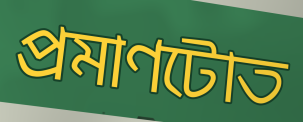
প্ৰমাণটোত